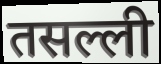
तसल्‍ली